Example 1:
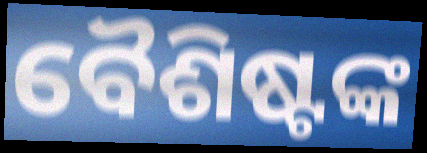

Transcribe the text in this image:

ବୈଶିଷ୍ଟଙ୍କ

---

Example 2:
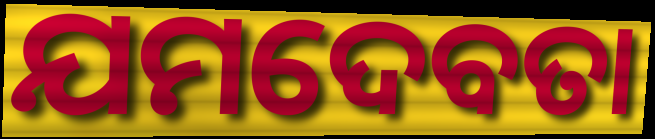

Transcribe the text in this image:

ଯମଦେବତା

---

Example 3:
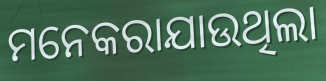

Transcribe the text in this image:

ମନେକରାଯାଉଥିଲା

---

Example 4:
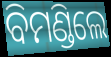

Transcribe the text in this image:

ବିମଣ୍ଡିଲେ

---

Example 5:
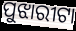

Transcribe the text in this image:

ପୁଝାରୀଟା